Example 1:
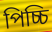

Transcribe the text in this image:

পিচ্চি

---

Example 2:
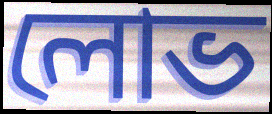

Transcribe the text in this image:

লোভ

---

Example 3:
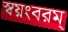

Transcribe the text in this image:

স্বয়ংবরম্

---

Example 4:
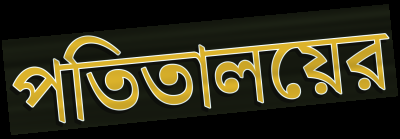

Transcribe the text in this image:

পতিতালয়ের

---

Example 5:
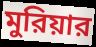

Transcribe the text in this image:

মুরিয়ার